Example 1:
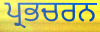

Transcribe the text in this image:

ਪ੍ਰਭਚਰਨ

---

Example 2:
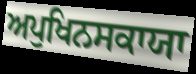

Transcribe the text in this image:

ਅਪੁਖਿਨਸਕਾਯਾ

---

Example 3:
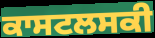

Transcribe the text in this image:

ਕਾਸਟਲਸਕੀ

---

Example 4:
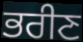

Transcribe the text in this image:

ਭਰੀਣ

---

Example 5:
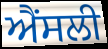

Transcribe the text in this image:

ਐਂਸਲੀ